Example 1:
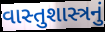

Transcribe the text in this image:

વાસ્તુશાસ્ત્રનું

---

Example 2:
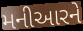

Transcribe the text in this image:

મનીઆરને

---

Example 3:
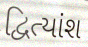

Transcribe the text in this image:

દ્વિત્યાંશ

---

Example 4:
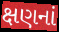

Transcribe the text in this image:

ક્ષણનાં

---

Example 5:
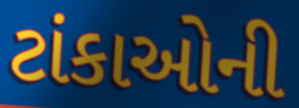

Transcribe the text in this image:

ટાંકાઓની